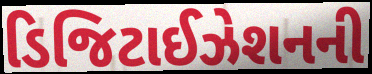
ડિજિટાઈઝેશનની